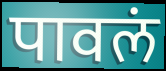
पावलं